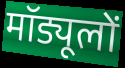
मॉड्यूलों